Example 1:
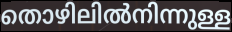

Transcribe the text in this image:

തൊഴിലിൽനിന്നുള്ള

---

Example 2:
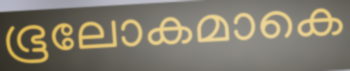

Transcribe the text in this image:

ഭൂലോകമാകെ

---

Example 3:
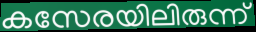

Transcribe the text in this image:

കസേരയിലിരുന്ന്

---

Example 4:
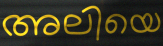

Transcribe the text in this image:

അലിയെ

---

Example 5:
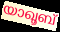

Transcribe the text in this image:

യാഖൂബ്